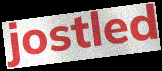
jostled